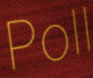
Poll